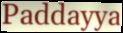
Paddayya